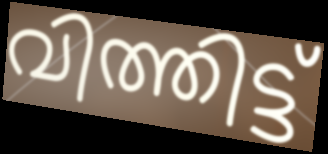
വിത്തിട്ട്